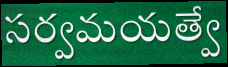
సర్వమయత్వే